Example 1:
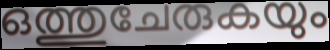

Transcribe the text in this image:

ഒത്തുചേരുകയും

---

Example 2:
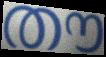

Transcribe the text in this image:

തൗ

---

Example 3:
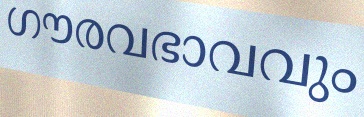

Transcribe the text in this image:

ഗൗരവഭാവവും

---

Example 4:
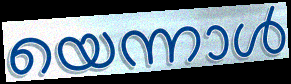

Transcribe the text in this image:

യെന്നാൾ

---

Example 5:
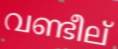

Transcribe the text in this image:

വണ്ടീല്